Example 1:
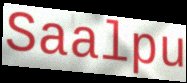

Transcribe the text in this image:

Saalpu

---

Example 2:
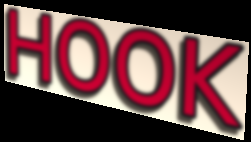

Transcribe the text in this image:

HOOK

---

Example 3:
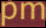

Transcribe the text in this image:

pm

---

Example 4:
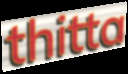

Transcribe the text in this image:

thitta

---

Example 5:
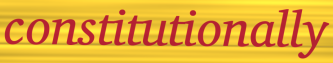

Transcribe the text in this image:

constitutionally